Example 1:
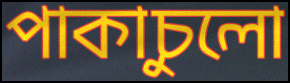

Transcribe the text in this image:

পাকাচুলো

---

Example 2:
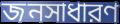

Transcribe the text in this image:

জনসাধারণ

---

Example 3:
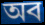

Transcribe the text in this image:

অব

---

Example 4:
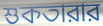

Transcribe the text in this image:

শুকতারার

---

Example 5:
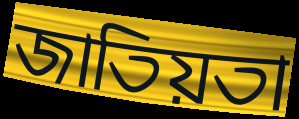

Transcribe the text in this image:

জাতিয়তা